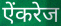
ऐंकरेज